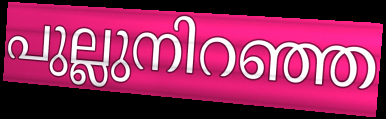
പുല്ലുനിറഞ്ഞ